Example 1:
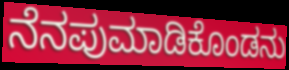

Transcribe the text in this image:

ನೆನಪುಮಾಡಿಕೊಂಡನು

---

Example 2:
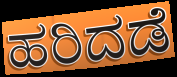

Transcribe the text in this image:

ಹರಿದಡೆ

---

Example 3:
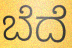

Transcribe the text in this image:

ಬೆದೆ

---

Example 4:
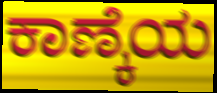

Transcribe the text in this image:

ಕಾಣ್ಕೆಯ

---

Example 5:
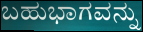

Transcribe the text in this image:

ಬಹುಭಾಗವನ್ನು